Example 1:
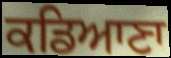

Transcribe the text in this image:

ਕਡਿਆਣਾ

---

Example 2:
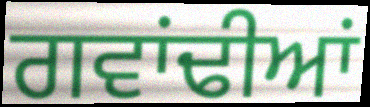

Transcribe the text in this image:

ਗਵਾਂਢੀਆਂ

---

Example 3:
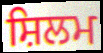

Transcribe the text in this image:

ਸ਼ਿਲਮ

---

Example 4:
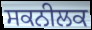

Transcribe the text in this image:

ਸਕਨੀਲਕ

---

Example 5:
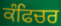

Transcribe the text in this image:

ਕੰਫਿਚਰ